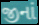
જીનાં